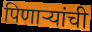
पिणाऱ्यांची